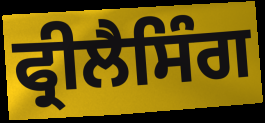
ਫ੍ਰੀਲੈਸਿੰਗ